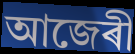
আজেৰী